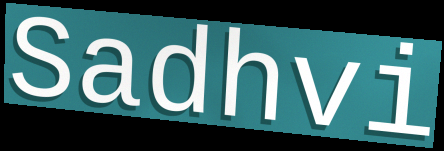
Sadhvi